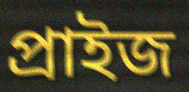
প্ৰাইজ